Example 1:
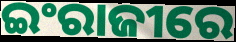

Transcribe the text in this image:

ଇଂରାଜୀରେ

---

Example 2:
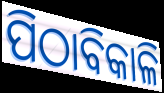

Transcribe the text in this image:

ପିଠାବିକାଳି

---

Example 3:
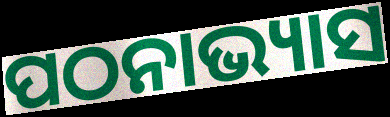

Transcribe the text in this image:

ପଠନାଭ୍ୟାସ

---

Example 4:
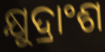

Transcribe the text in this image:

କ୍ଷୁଦ୍ରାଂଶ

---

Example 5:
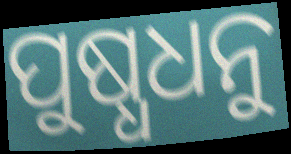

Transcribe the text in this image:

ପୁଷ୍ଧଧନୁ